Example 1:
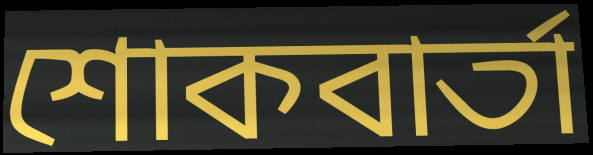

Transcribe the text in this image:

শোকবার্তা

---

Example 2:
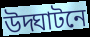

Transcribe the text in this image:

উদ্ঘাটনে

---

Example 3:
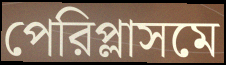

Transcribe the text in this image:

পেরিপ্লাসমে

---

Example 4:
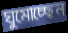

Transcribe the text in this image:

ঘুমোচ্ছেন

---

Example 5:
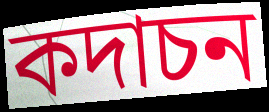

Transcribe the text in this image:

কদাচন